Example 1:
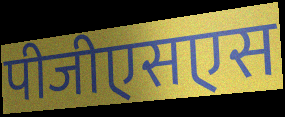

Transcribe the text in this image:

पीजीएसएस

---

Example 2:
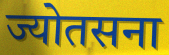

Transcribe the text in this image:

ज्योतसना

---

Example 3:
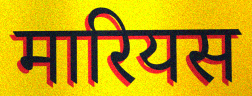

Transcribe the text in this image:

मारियस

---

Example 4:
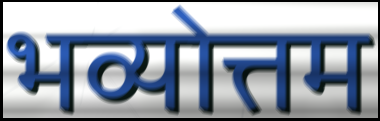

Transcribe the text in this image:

भव्योत्तम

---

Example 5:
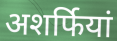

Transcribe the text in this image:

अशर्फियां